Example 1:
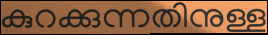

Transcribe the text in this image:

കുറക്കുന്നതിനുള്ള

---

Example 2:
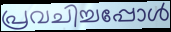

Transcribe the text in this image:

പ്രവചിച്ചപ്പോൾ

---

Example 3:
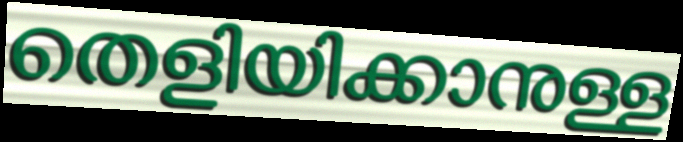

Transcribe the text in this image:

തെളിയിക്കാനുള്ള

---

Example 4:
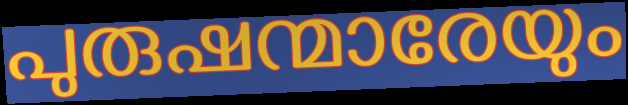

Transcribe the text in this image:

പുരുഷന്മാരേയും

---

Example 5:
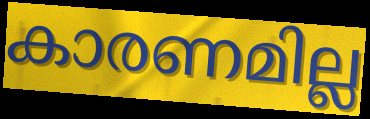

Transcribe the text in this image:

കാരണമില്ല